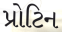
પ્રોટિન